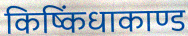
किष्किंधाकाण्ड